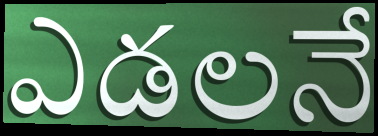
ఎడలనే